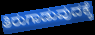
ತಿರುಗಾಡುವುದಕ್ಕೆ